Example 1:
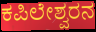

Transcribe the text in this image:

ಕಪಿಲೇಶ್ವರನ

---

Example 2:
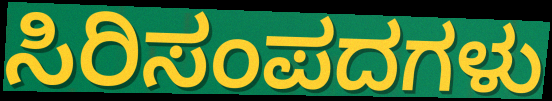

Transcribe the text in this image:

ಸಿರಿಸಂಪದಗಳು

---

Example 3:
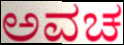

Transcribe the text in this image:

ಅವಚ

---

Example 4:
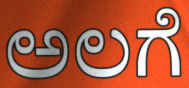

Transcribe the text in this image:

ಅಲಗೆ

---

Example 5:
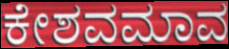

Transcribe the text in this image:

ಕೇಶವಮಾವ